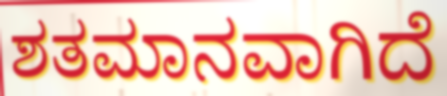
ಶತಮಾನವಾಗಿದೆ